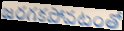
జరగకపోవటంతో